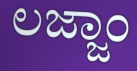
ಲಜ್ಜಾಂ